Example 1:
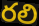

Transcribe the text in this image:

రలి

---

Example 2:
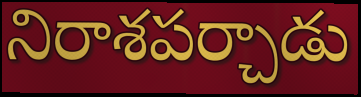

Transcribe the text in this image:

నిరాశపర్చాడు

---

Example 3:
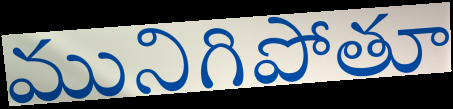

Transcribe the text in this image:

మునిగిపోతూ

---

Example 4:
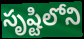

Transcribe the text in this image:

సృష్టిలోని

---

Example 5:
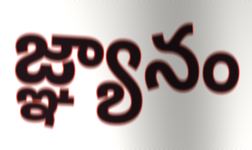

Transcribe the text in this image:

జ్ఞ్యానం